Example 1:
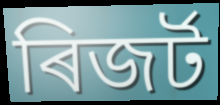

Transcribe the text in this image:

ৰিজৰ্ট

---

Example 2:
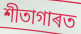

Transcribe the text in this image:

শীতাগাৰত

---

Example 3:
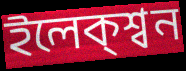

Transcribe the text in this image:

ইলেক্‌শ্বন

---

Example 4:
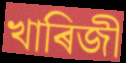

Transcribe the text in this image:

খাৰিজী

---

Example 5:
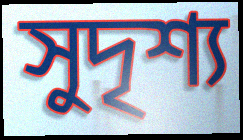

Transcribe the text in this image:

সুদৃশ্য